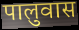
पालुवास